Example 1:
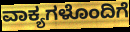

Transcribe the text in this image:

ವಾಕ್ಯಗಳೊಂದಿಗೆ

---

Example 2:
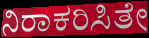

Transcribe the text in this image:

ನಿರಾಕರಿಸಿತೇ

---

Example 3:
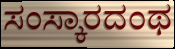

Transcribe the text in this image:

ಸಂಸ್ಕಾರದಂಥ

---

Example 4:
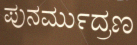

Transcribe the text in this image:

ಪುನರ್ಮುದ್ರಣ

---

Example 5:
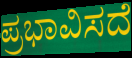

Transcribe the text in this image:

ಪ್ರಭಾವಿಸದೆ